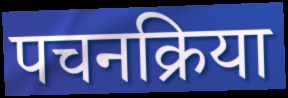
पचनक्रिया